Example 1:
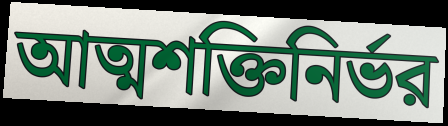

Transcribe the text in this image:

আত্মশক্তিনির্ভর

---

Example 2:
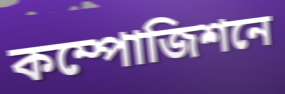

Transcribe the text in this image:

কম্পোজিশনে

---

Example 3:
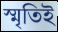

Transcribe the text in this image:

স্মৃতিই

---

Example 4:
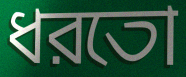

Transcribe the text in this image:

ধরতো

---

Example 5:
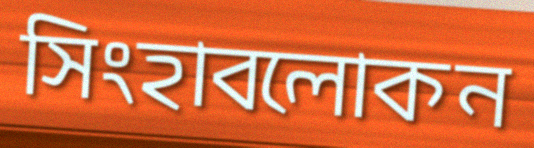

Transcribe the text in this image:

সিংহাবলোকন